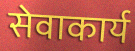
सेवाकार्य